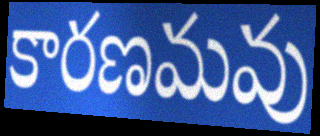
కారణమవు